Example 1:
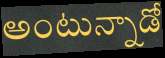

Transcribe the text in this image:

అంటున్నాడో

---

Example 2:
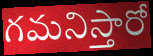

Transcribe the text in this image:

గమనిస్తారో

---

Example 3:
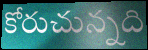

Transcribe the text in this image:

కోరుచున్నది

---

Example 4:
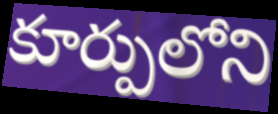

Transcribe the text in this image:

కూర్పులోని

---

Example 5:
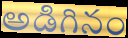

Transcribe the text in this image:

అడిగినం